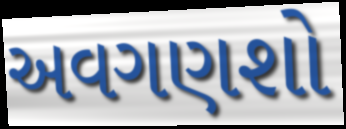
અવગણશો